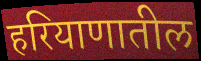
हरियाणातील